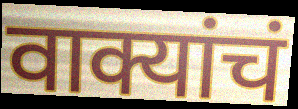
वाक्यांचं